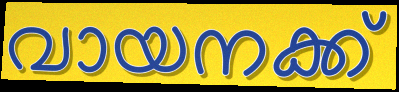
വായനക്ക്